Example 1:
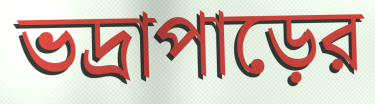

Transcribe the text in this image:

ভদ্রাপাড়ের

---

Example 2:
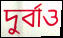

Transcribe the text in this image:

দুর্বাও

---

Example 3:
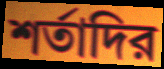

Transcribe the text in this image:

শর্তাদির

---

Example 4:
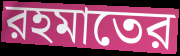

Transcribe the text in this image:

রহমাতের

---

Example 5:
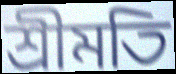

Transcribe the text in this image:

শ্রীমতি